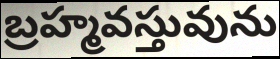
బ్రహ్మవస్తువును